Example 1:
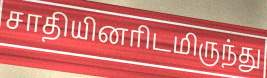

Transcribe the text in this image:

சாதியினரிடமிருந்து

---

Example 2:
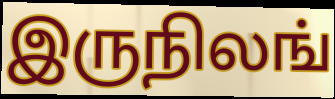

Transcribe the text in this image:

இருநிலங்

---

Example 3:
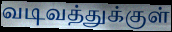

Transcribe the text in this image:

வடிவத்துக்குள்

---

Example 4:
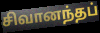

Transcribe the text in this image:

சிவானந்தப்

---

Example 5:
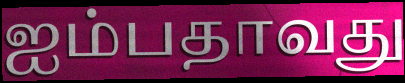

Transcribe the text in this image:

ஐம்பதாவது